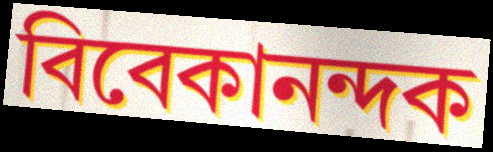
বিবেকানন্দক